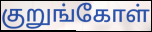
குறுங்கோள்